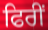
ਫਿਰੀਂ